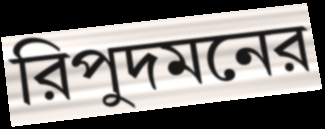
রিপুদমনের